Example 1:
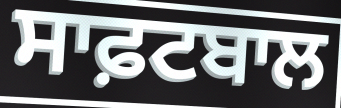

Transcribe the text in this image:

ਸਾਫ਼ਟਬਾਲ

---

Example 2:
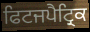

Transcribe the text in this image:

ਫਿਟਜਪੈਟ੍ਰਿਕ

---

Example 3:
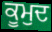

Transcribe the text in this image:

ਕੂਮੁਦ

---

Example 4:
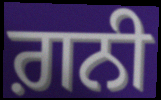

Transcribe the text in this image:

ਗ਼ਨੀ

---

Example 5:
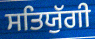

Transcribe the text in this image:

ਸਤਿਯੁੱਗੀ